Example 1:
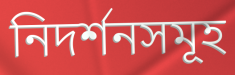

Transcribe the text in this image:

নিদর্শনসমূহ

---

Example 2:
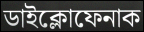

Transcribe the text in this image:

ডাইক্লোফেনাক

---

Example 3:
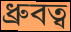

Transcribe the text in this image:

ধ্রুবত্ব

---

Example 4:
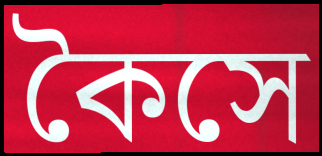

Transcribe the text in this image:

কৈসে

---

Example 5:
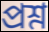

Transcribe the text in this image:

প্রশ্ন